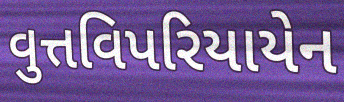
વુત્તવિપરિયાયેન